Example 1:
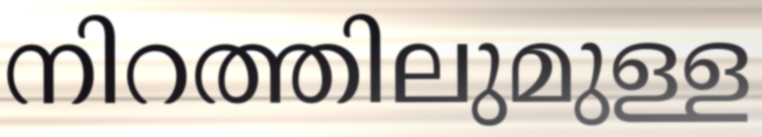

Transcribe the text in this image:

നിറത്തിലുമുള്ള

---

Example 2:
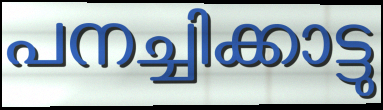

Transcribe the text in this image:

പനച്ചിക്കാട്ടു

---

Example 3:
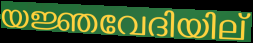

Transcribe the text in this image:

യജ്ഞവേദിയില്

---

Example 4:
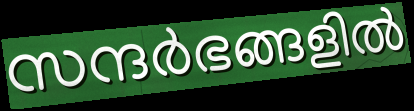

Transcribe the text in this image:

സന്ദർഭങ്ങളിൽ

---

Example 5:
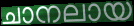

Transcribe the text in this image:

ചാനലായ